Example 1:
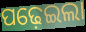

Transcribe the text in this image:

ପଢ଼େଇଲା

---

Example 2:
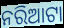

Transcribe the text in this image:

ନରିଆଟା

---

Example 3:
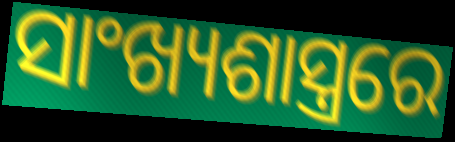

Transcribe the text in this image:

ସାଂଖ୍ୟଶାସ୍ତ୍ରରେ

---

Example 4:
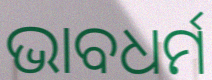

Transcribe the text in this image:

ଭାବଧର୍ମ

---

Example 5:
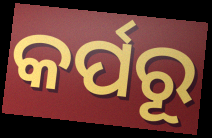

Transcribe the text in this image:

କର୍ପରୂ